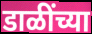
डाळींच्या